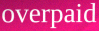
overpaid